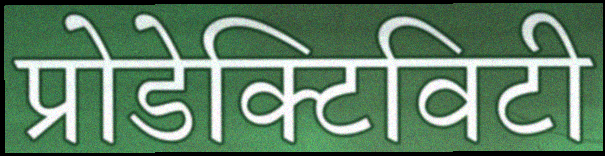
प्रोडेक्टिविटी